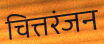
चित्तरंजन